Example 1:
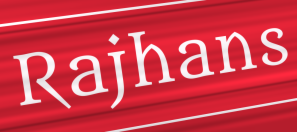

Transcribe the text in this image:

Rajhans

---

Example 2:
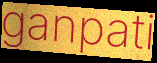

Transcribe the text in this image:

ganpati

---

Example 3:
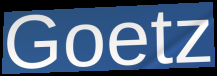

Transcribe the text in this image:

Goetz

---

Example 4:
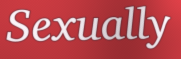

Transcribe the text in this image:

Sexually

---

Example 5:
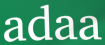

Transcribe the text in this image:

adaa